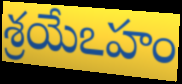
శ్రయేఽహం